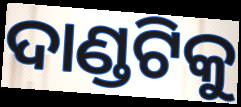
ଦାଣ୍ଡଟିକୁ